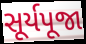
સૂર્યપૂજા